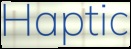
Haptic